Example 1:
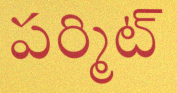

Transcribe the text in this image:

పర్మిట్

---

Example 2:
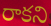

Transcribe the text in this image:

రాకని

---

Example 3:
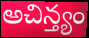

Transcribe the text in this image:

అచిన్త్యం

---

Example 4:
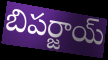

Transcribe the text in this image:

బిపర్జాయ్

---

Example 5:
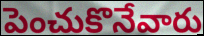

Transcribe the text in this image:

పెంచుకొనేవారు